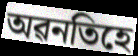
অৱনতিহে